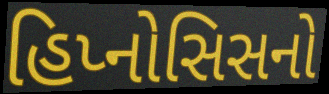
હિપ્નોસિસનો